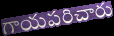
గాయపరిచారు